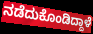
ನಡೆದುಕೊಂಡಿದ್ದಾಳೆ